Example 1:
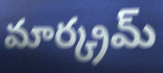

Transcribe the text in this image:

మార్క్రమ్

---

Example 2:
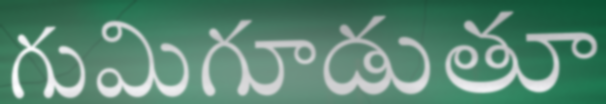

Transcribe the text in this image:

గుమిగూడుతూ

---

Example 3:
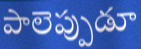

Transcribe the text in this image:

పాలెప్పుడూ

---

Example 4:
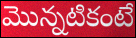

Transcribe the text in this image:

మొన్నటికంటే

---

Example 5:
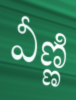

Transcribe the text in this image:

వీణ్ణి